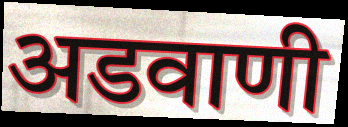
अडवाणी